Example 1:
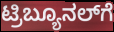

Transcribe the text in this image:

ಟ್ರಿಬ್ಯೂನಲ್‌ಗೆ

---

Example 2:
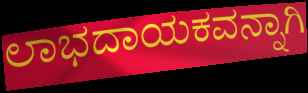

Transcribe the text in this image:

ಲಾಭದಾಯಕವನ್ನಾಗಿ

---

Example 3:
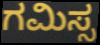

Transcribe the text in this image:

ಗಮಿಸ್ಸ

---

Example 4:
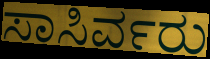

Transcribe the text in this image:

ಸಾಸಿರ್ವರು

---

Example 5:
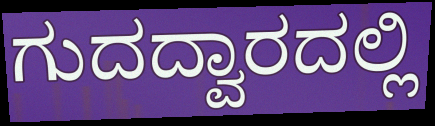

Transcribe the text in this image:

ಗುದದ್ವಾರದಲ್ಲಿ